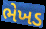
ભેખડ